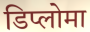
डिप्लोमा